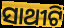
ସାଥୀଟି